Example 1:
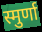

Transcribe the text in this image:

स्मुर्णा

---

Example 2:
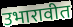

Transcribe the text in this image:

उभारावीत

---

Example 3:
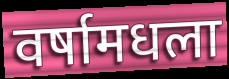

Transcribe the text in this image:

वर्षामधला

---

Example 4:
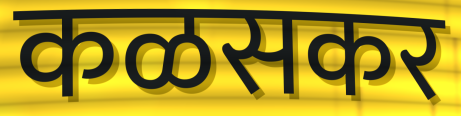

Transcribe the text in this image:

कळसकर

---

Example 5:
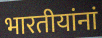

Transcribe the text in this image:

भारतीयांनां